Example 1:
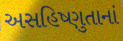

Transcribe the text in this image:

અસહિષ્ણુતાનાં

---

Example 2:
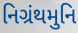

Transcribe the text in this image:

નિગ્રંથમુનિ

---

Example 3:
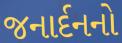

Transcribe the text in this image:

જનાર્દનનો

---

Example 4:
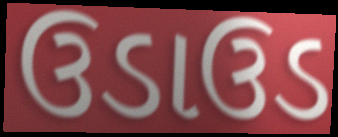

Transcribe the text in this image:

ઉડાઉડ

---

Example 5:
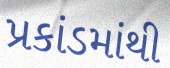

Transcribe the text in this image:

પ્રકાંડમાંથી